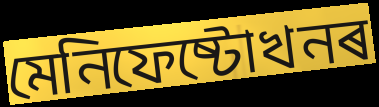
মেনিফেষ্টোখনৰ